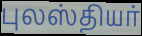
புலஸ்தியர்